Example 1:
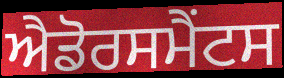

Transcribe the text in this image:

ਐਡੋਰਸਮੈਂਟਸ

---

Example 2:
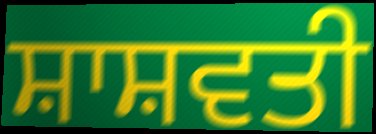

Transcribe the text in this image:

ਸ਼ਾਸ਼ਵਤੀ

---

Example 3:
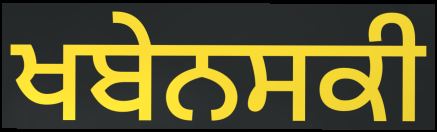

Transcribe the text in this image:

ਖਬੇਨਸਕੀ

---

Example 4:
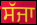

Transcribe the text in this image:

ਸੱਜਾ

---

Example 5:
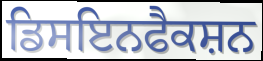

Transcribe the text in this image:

ਡਿਸਇਨਫੈਕਸ਼ਨ